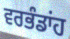
ਵਰਭੰਡਾਂਹ